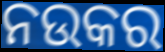
ନଉକର